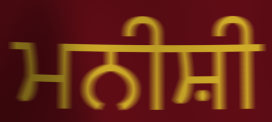
ਮਨੀਸ਼ੀ